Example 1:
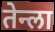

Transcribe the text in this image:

तेन्ला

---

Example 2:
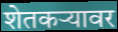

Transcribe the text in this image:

शेतकऱ्यावर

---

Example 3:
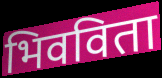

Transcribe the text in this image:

भिवविता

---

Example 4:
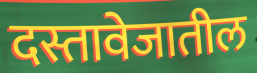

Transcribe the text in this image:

दस्तावेजातील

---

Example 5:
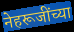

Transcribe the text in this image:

नेहरूजींच्या